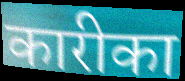
कारीका